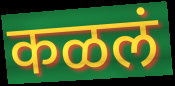
कळलं